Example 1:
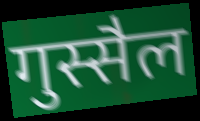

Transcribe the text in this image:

गुस्सैल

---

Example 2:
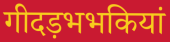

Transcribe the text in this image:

गीदड़भभकियां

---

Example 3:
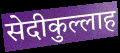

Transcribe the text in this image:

सेदीकुल्लाह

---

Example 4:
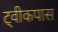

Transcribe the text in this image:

ट्वीकपास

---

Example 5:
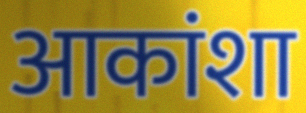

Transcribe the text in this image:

आकांशा